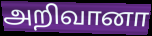
அறிவானா